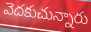
వెదకుచున్నారు